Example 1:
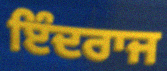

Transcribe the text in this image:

ਇੰਦਰਾਜ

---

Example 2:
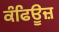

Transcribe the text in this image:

ਕੰਫਿਊਜ਼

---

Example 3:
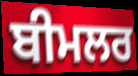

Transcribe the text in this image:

ਬੀਮਲਰ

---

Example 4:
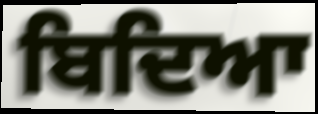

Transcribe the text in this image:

ਬਿਦਿਆ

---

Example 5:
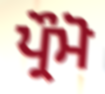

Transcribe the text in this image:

ਪ੍ਰੌਮੋ